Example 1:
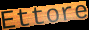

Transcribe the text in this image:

Ettore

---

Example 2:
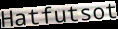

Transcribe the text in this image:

Hatfutsot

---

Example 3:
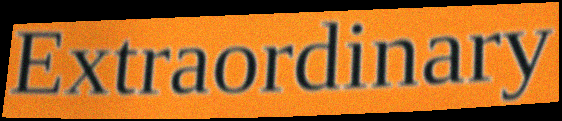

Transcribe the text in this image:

Extraordinary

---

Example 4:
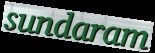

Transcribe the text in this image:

sundaram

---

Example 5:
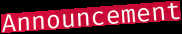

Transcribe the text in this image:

Announcement